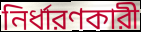
নির্ধারণকারী